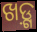
ଖଡ଼୍ଗ